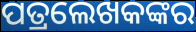
ପତ୍ରଲେଖକଙ୍କର